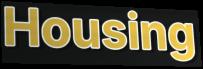
Housing